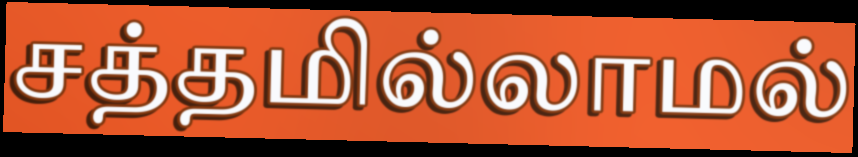
சத்தமில்லாமல்